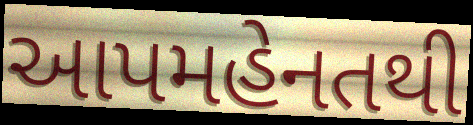
આપમહેનતથી